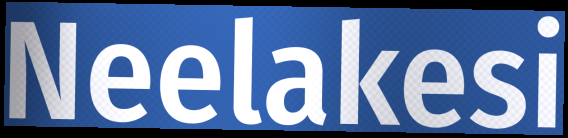
Neelakesi